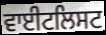
ਵਾਈਟਲਿਸਟ